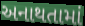
અનાથતામાં